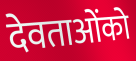
देवताओंको